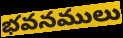
భవనములు